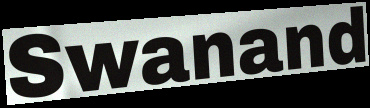
Swanand